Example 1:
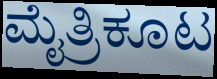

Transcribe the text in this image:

ಮೈತ್ರಿಕೂಟ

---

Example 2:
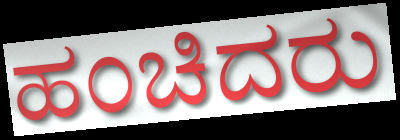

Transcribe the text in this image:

ಹಂಚಿದರು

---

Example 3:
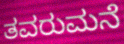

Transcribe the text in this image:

ತವರುಮನೆ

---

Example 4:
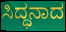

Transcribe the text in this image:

ಸಿದ್ಧನಾದ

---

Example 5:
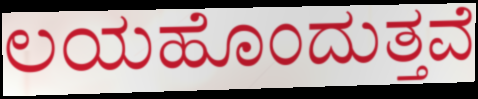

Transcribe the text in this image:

ಲಯಹೊಂದುತ್ತವೆ